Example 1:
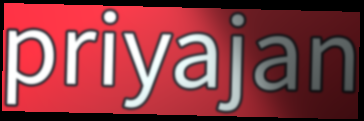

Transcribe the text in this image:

priyajan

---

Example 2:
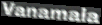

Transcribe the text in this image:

Vanamala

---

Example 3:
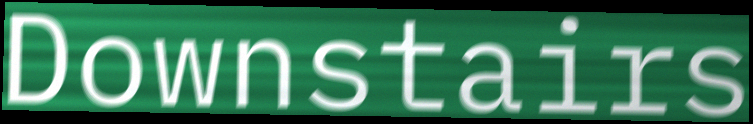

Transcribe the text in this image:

Downstairs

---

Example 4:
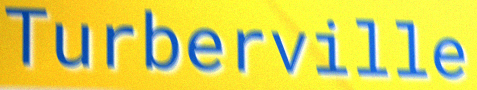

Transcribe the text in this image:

Turberville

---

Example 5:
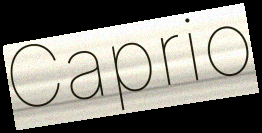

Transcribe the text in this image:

Caprio